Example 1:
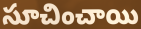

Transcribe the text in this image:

సూచించాయి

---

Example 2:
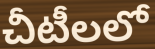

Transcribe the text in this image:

చీటీలలో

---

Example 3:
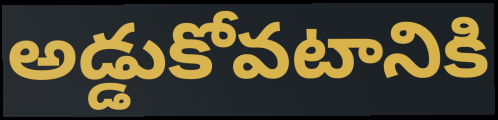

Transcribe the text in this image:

అడ్డుకోవటానికి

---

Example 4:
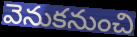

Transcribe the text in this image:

వెనుకనుంచి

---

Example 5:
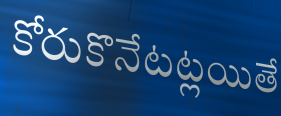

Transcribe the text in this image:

కోరుకొనేటట్లయితే